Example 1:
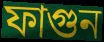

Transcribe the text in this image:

ফাগুন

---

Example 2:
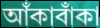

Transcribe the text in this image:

আঁকাবাঁকা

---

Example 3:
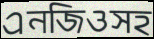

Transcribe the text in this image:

এনজিওসহ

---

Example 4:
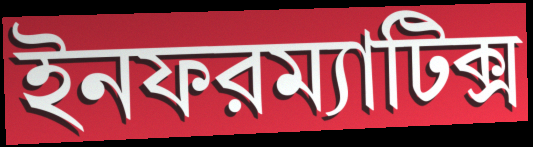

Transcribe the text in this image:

ইনফরম্যাটিক্স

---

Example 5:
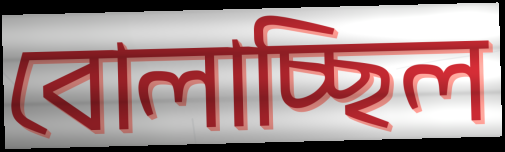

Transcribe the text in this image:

বোলাচ্ছিল